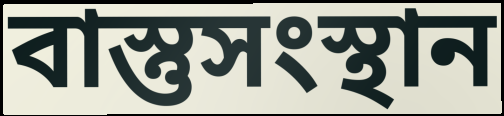
বাস্তুসংস্থান